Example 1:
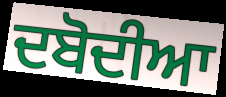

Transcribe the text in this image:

ਦਬੋਦੀਆ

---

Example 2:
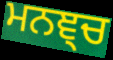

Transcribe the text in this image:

ਮਨਞ੍ਚ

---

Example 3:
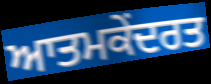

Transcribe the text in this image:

ਆਤਮਕੇਂਦਰਤ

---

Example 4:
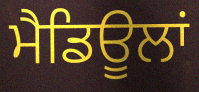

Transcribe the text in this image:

ਮੈਡਿਊਲਾਂ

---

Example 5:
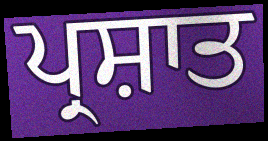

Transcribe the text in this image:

ਪ੍ਰਸ਼ਾਤ